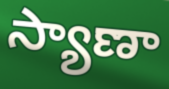
స్యాణా